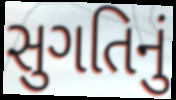
સુગતિનું